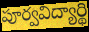
పూర్వవిద్యార్థి